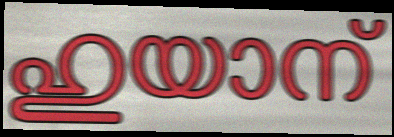
ഹുയാന്